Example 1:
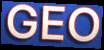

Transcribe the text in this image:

GEO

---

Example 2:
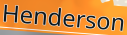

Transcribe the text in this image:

Henderson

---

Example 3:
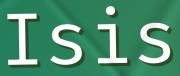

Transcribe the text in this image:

Isis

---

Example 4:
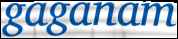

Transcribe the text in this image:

gaganam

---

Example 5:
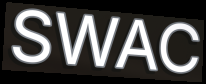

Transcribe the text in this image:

SWAC